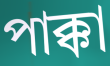
পাক্কা